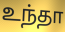
உந்தா